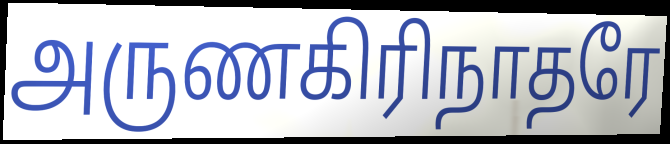
அருணகிரிநாதரே